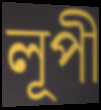
লূপী